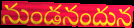
నుండనందున